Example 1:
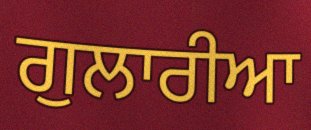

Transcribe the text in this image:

ਗੁਲਾਰੀਆ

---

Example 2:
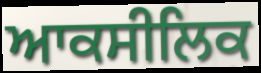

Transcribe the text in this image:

ਆਕਸੀਲਿਕ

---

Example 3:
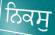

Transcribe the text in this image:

ਨਿਕਸੁ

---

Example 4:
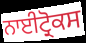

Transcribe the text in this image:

ਨਾਈਟ੍ਰੋਕਸ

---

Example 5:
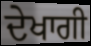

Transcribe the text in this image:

ਦੇਖਾਗੀ